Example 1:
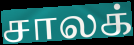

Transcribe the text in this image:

சாலக்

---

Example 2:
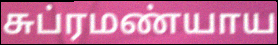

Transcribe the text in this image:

சுப்ரமண்யாய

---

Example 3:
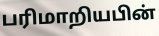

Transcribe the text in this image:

பரிமாறியபின்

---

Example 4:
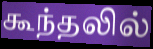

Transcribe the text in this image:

கூந்தலில்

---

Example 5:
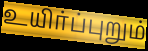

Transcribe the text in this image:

உயிர்ப்புறும்